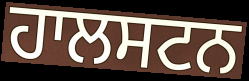
ਹਾਲਸਟਨ